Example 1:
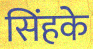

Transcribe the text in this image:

सिंहके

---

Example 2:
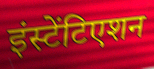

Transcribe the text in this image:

इंस्टेंटिएशन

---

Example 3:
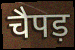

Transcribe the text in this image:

चैपड़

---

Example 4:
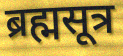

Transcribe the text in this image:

ब्रह्मसूत्र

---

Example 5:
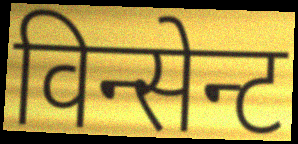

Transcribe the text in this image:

विन्सेन्ट